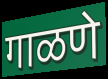
गाळणे